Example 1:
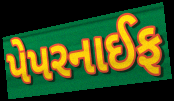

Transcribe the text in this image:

પેપરનાઈફ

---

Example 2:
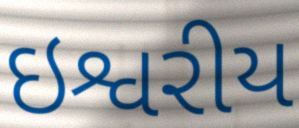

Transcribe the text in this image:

ઇશ્વરીય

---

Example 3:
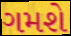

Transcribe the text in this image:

ગમશે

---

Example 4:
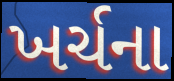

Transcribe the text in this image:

ખર્ચના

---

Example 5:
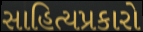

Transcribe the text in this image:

સાહિત્યપ્રકારો